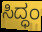
ಸಿದ್ಧಂ